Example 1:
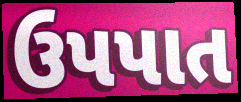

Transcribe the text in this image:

ઉપપાત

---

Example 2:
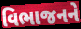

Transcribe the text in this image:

વિભાજનને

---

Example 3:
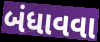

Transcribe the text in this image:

બંધાવવા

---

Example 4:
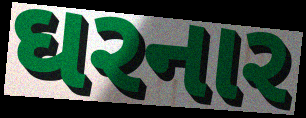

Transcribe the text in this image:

ઘરનાર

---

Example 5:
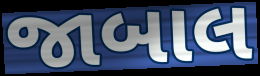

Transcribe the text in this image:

જાબાલ